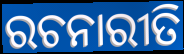
ରଚନାରୀତି